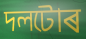
দলটোৰ